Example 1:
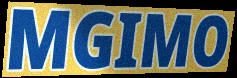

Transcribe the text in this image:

MGIMO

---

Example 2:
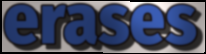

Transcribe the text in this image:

erases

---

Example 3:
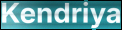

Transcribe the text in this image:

Kendriya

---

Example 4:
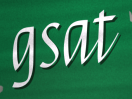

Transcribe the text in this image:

gsat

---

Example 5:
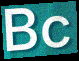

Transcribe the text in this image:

Bc